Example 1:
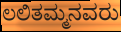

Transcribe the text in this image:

ಲಲಿತಮ್ಮನವರು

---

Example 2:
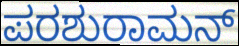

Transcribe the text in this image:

ಪರಶುರಾಮನ್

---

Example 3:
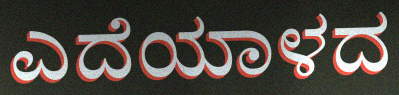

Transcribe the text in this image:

ಎದೆಯಾಳದ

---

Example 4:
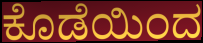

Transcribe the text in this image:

ಕೊಡೆಯಿಂದ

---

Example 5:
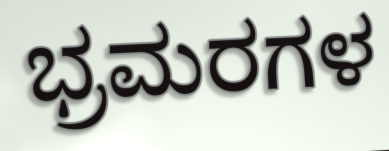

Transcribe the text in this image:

ಭ್ರಮರಗಳ